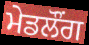
ਮੇਡਲੌਂਗ